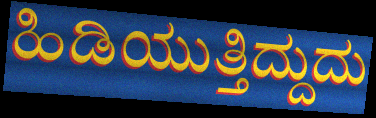
ಹಿಡಿಯುತ್ತಿದ್ದುದು